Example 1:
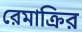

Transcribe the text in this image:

রেমাক্রির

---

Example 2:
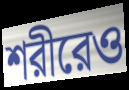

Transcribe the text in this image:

শরীরেও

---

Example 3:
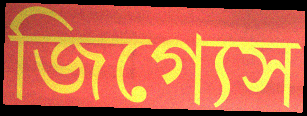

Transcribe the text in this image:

জিগ্যেস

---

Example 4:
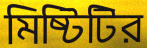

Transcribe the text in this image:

মিষ্টিটির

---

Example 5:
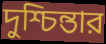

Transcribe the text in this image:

দুশ্চিন্তার